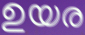
ഉയര